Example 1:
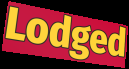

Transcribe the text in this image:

Lodged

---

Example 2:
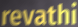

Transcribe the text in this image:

revathi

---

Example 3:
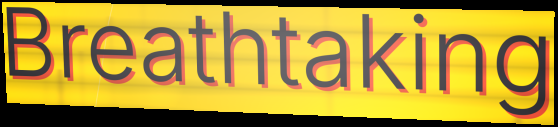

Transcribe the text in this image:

Breathtaking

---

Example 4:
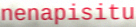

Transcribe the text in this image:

nenapisitu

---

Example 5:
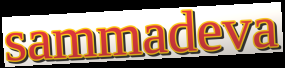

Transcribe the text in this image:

sammadeva